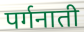
पर्गनाती